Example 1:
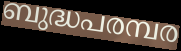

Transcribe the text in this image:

ബുദ്ധപരമ്പര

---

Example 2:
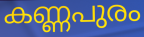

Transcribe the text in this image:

കണ്ണപുരം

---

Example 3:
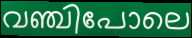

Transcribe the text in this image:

വഞ്ചിപോലെ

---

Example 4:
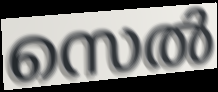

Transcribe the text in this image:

സെൽ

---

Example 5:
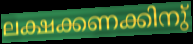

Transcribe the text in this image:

ലക്ഷക്കണക്കിനു്